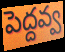
పెద్దవ్వ